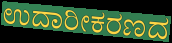
ಉದಾರೀಕರಣದ